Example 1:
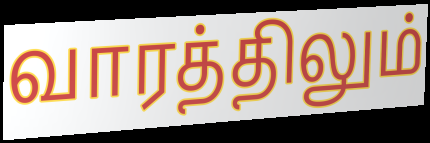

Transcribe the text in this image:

வாரத்திலும்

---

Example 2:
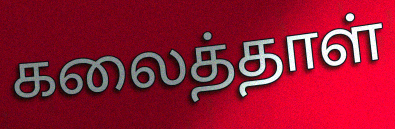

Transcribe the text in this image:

கலைத்தாள்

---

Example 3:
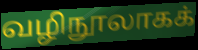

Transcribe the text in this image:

வழிநூலாகக்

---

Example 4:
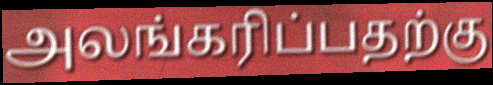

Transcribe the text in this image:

அலங்கரிப்பதற்கு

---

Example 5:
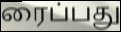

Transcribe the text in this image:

ரைப்பது